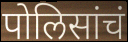
पोलिसांचं